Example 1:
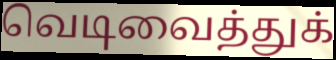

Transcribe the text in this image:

வெடிவைத்துக்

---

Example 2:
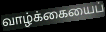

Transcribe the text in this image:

வாழ்க்கையைப்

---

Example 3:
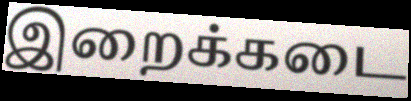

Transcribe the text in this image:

இறைக்கடை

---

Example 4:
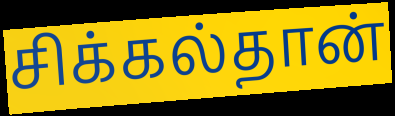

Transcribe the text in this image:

சிக்கல்தான்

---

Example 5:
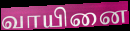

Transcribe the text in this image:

வாயினை